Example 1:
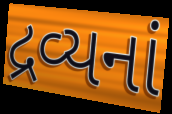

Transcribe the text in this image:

દ્રવ્યનાં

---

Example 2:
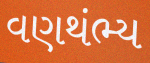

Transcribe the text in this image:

વણથંભ્ય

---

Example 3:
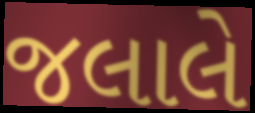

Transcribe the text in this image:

જલાલે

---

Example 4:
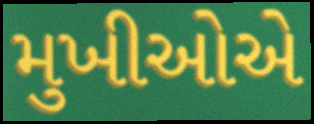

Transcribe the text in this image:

મુખીઓએ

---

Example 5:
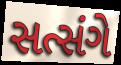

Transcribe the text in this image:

સત્સંગે